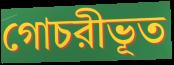
গোচরীভূত